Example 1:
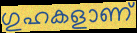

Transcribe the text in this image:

ഗുഹകളാണ്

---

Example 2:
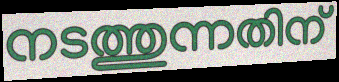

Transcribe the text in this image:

നടത്തുന്നതിന്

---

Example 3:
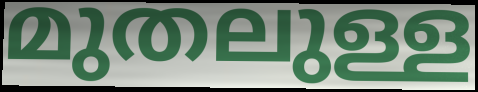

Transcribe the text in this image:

മുതലുള്ള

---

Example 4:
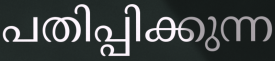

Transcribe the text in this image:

പതിപ്പിക്കുന്ന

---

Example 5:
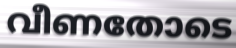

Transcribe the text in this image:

വീണതോടെ